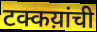
टक्कय़ांची